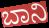
ಬಾನಿ